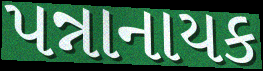
પન્નાનાયક